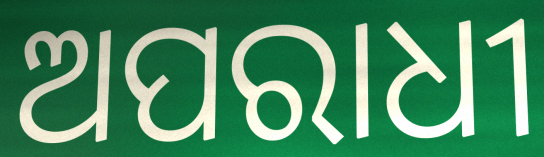
ଅପରାଧୀ